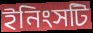
ইনিংসটি